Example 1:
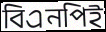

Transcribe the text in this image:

বিএনপিই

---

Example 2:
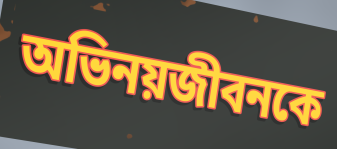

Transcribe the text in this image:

অভিনয়জীবনকে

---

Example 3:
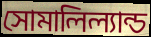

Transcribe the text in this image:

সোমালিল্যান্ড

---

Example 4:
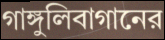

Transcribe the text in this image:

গাঙ্গুলিবাগানের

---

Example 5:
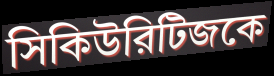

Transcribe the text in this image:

সিকিউরিটিজকে